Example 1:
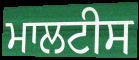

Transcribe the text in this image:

ਮਾਲਟੀਸ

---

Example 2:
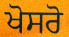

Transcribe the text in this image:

ਖੋਸਰੋ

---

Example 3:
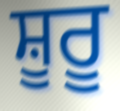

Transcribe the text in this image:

ਸ਼ੂਰੂ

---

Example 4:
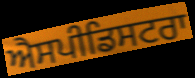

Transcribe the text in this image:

ਐਸਪੀਡਿਸਟਰਾ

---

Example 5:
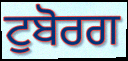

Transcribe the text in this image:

ਟੁਬੋਰਗ